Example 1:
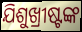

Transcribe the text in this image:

ଯିଶୁଖ୍ରୀଷ୍ଟଙ୍କ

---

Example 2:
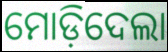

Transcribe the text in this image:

ମୋଡ଼ିଦେଲା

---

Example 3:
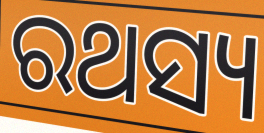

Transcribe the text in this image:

ରଥସ୍ୟ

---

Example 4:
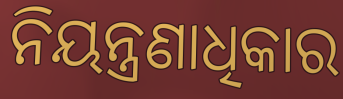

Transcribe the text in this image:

ନିୟନ୍ତ୍ରଣାଧିକାର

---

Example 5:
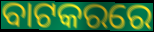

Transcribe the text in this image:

ବାଟକରରେ